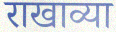
राखाव्या